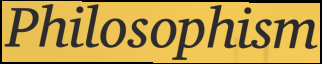
Philosophism